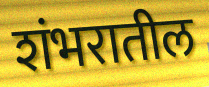
शंभरातील